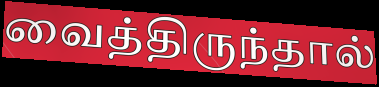
வைத்திருந்தால்